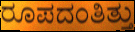
ರೂಪದಂತಿತ್ತು